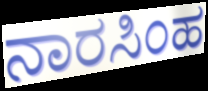
ನಾರಸಿಂಹ